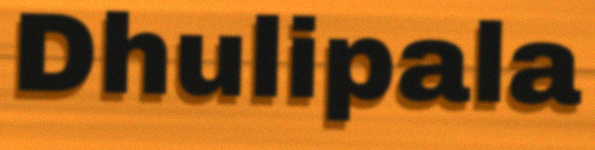
Dhulipala